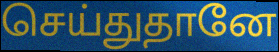
செய்துதானே